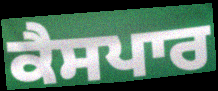
ਕੈਸਪਾਰ